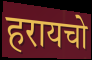
हरायचो